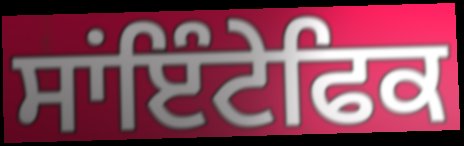
ਸਾਂਇੰਟੇਫਿਕ